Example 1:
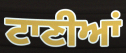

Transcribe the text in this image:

ਟਾਣੀਆਂ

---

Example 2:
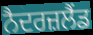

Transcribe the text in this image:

ਨੈਦਰਜ਼ਲੈਂਡ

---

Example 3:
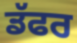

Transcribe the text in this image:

ਡੱਫਰ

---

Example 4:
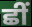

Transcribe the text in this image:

ਛੀਂ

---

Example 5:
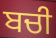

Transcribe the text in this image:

ਬਚੀ